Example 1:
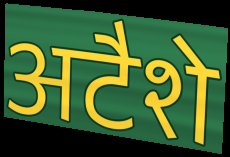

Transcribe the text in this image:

अटैशे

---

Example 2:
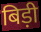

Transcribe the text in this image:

बिड़ी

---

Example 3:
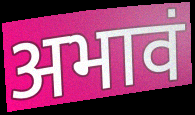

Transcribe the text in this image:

अभावं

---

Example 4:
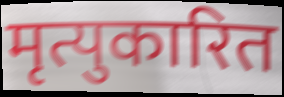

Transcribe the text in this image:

मृत्युकारित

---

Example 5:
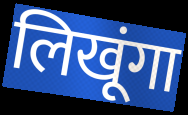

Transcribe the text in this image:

लिखूंगा